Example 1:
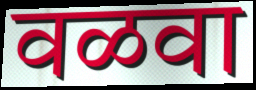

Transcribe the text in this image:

वळवा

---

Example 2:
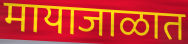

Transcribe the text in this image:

मायाजाळात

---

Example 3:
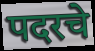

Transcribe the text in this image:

पदरचे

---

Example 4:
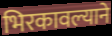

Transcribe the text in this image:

भिरकावल्याने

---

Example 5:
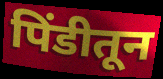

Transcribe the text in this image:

पिंडीतून